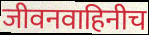
जीवनवाहिनीच